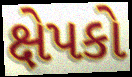
ક્ષેપકો